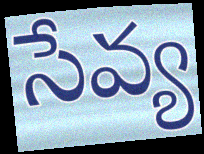
సేవ్య